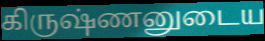
கிருஷ்ணனுடைய